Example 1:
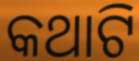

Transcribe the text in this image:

କଥାଟି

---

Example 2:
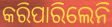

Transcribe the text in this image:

କରିପାରିଲେନି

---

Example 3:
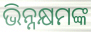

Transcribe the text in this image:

ଭିନ୍ନକ୍ଷମଙ୍କ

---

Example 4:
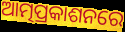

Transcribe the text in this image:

ଆତ୍ମପ୍ରକାଶନରେ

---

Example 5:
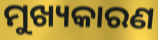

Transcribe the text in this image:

ମୁଖ୍ୟକାରଣ